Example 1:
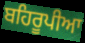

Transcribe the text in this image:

ਬਹਿਰੂਪੀਆ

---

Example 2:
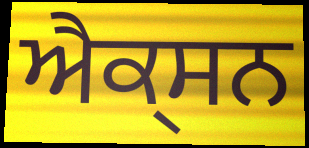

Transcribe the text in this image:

ਐਕ੍ਸਨ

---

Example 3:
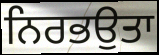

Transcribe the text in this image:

ਨਿਰਭਉਤਾ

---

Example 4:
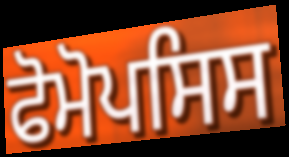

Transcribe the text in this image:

ਫੋਮੋਪਸਿਸ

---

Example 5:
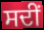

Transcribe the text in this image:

ਸਦੀਂ